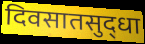
दिवसातसुद्धा